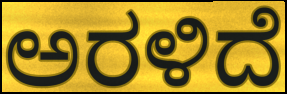
ಅರಳಿದೆ